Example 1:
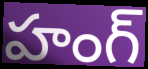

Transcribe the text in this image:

హంగ్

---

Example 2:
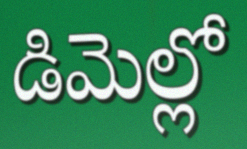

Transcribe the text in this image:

డిమెల్లో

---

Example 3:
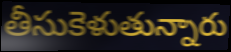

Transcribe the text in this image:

తీసుకెళుతున్నారు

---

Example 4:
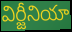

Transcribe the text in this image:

విర్జీనియా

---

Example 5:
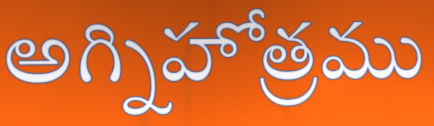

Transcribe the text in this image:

అగ్నిహోత్రము